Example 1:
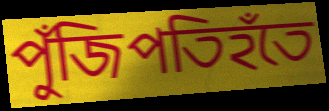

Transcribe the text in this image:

পুঁজিপতিহঁতে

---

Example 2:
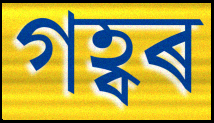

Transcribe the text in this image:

গহ্বৰ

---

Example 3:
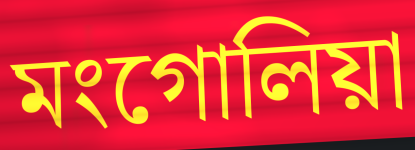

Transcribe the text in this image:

মংগোলিয়া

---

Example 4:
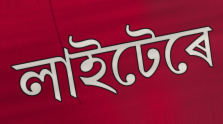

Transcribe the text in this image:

লাইটেৰে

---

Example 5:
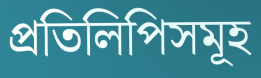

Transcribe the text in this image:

প্ৰতিলিপিসমূহ